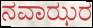
ನವಾಝರ